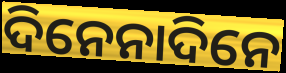
ଦିନେନାଦିନେ